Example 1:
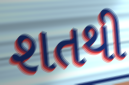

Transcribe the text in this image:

શતથી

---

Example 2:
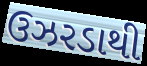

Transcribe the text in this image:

ઉઝરડાથી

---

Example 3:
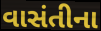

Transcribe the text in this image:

વાસંતીના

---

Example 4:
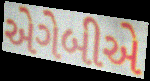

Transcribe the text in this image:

એગેબીએ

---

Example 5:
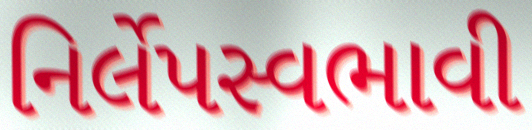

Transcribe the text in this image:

નિર્લેપસ્વભાવી